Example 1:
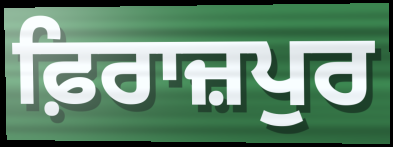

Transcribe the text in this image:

ਫ਼ਿਰਾਜ਼ਪੁਰ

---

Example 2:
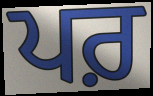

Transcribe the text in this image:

ਪਰ਼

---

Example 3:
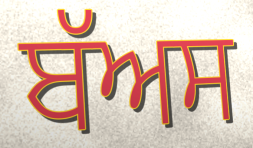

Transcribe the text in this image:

ਬੱਅਸ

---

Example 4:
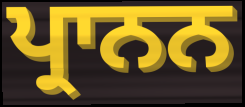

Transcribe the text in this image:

ਪ੍ਰਾਨਨ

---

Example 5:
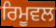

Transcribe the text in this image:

ਰਿਮੂਵਲ